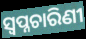
ସ୍ୱପ୍ନଚାରିଣୀ